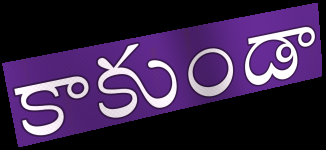
కాకుండా